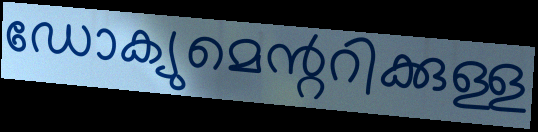
ഡോക്യുമെന്ററിക്കുള്ള